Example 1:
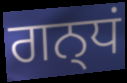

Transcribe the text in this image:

ਗਨ੍ਧਂ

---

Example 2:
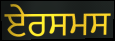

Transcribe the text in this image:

ਏਰਸਮਸ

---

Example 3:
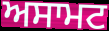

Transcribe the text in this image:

ਅਸਾਮਟ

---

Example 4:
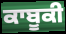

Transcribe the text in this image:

ਕਾਬੂਕੀ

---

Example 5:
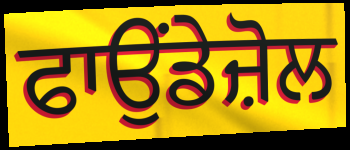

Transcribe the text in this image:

ਫਾਉਂਡੇਜ਼ੋਲ